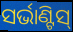
ସର୍ଭାଣ୍ଟିସ୍